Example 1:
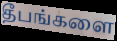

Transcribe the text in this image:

தீபங்களை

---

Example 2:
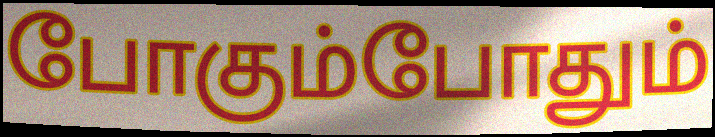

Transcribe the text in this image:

போகும்போதும்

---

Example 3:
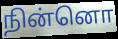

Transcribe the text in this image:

நின்னொ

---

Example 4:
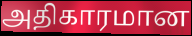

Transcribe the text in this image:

அதிகாரமான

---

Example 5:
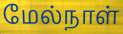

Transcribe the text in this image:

மேல்நாள்